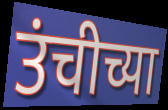
उंचीच्या